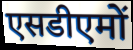
एसडीएमों